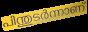
പിന്തുടർന്നാണ്